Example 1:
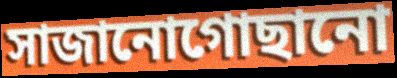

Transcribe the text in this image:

সাজানোগোছানো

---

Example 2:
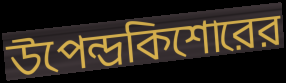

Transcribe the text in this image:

উপেন্দ্রকিশোরের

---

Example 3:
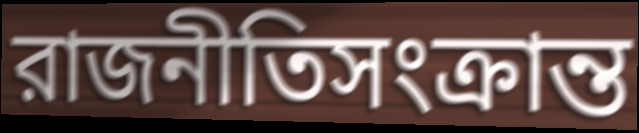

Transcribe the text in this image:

রাজনীতিসংক্রান্ত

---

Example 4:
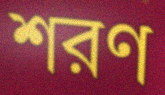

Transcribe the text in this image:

শরণ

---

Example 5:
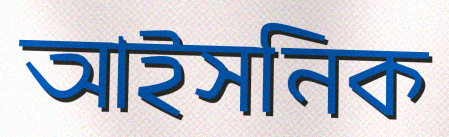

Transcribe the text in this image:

আইসনিক